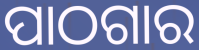
ପାଠଗାର